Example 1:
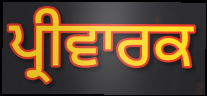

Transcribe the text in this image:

ਪ੍ਰੀਵਾਰਕ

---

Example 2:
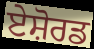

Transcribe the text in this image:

ਏਸ਼ੋਰਡ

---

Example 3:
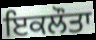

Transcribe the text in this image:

ਇਕਲੌਤਾ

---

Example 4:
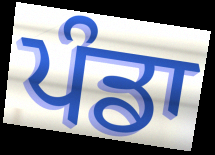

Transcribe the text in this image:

ਪੰਡਾ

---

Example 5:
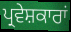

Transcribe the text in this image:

ਪ੍ਰਵੇਸ਼ਕਾਰਾਂ